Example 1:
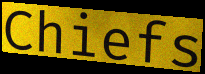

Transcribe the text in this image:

Chiefs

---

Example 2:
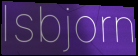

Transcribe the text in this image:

Isbjorn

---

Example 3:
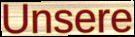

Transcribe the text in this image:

Unsere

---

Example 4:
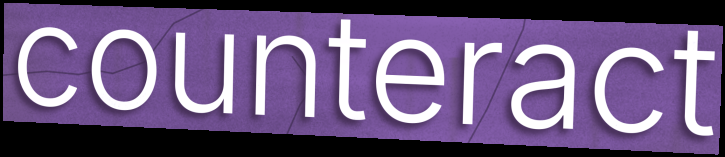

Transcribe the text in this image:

counteract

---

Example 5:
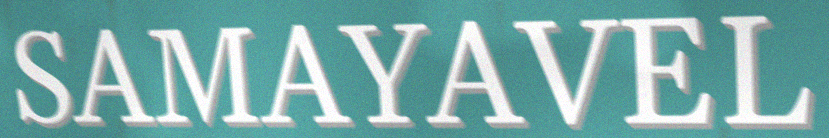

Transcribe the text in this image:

SAMAYAVEL